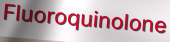
Fluoroquinolone